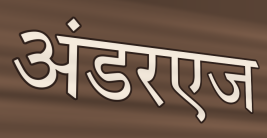
अंडरएज